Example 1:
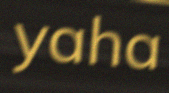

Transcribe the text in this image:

yaha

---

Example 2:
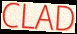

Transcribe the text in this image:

CLAD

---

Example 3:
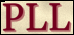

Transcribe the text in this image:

PLL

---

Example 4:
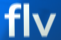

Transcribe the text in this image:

flv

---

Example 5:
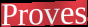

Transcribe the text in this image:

Proves